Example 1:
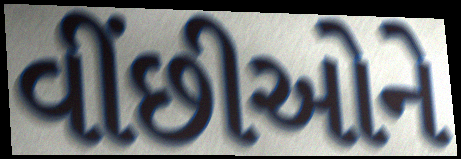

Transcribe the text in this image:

વીંછીઓને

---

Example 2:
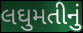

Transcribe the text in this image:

લઘુમતીનું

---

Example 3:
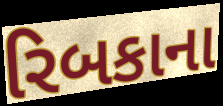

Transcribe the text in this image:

રિબકાના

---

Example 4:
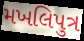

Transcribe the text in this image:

મખલિપુત્ર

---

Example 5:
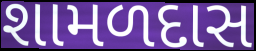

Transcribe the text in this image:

શામળદાસ